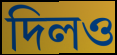
দিলও